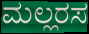
ಮಲ್ಲರಸ